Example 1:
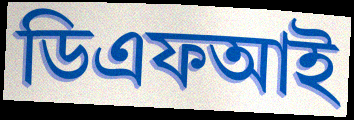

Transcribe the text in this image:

ডিএফআই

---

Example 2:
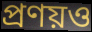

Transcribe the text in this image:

প্রণয়ও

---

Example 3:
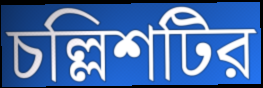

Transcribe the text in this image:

চল্লিশটির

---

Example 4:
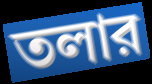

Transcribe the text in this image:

তলার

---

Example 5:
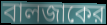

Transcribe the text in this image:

বালজাকের